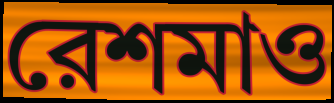
রেশমাও